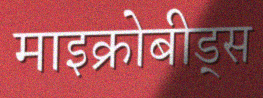
माइक्रोबीड्स